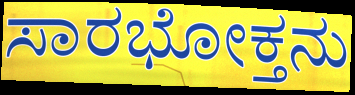
ಸಾರಭೋಕ್ತನು